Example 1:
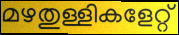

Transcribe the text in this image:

മഴതുള്ളികളേറ്റ്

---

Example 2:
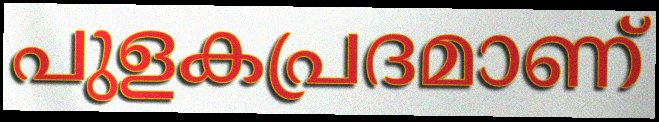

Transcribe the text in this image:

പുളകപ്രദമാണ്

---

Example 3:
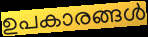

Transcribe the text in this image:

ഉപകാരങ്ങൾ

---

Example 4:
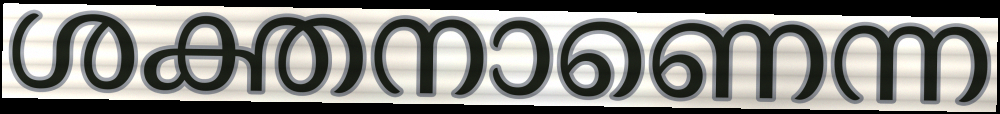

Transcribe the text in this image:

ശക്തനാണെന്ന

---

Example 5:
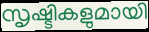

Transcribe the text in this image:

സൃഷ്ടികളുമായി